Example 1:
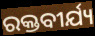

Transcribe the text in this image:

ରକ୍ତବୀର୍ଯ୍ୟ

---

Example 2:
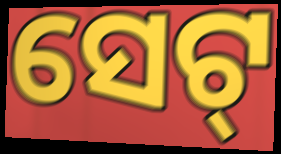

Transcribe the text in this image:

ସେଟ୍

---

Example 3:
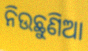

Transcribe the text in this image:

ନିଉଛୁଣିଆ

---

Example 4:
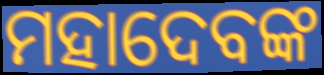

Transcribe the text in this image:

ମହାଦେବଙ୍କ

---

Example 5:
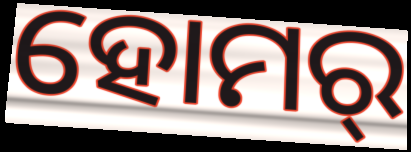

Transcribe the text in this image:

ହୋମର୍